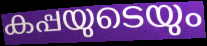
കപ്പയുടെയും